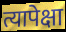
त्यापेक्षा